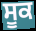
ਸੂਕ